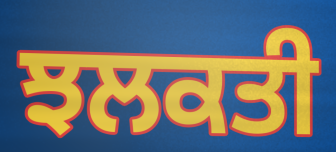
ਝਲਕਤੀ